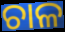
ଚାଳ